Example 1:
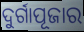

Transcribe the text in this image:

ଦୁର୍ଗାପୂଜାର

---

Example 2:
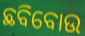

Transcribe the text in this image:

ଛବିବୋଉ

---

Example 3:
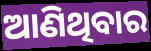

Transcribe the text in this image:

ଆଣିଥିବାର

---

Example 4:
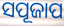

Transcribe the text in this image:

ସପୂଜାପ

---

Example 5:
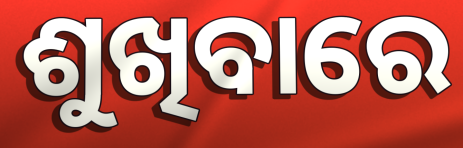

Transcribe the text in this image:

ଶୁଖିବାରେ